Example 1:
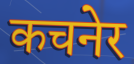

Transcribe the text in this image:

कचनेर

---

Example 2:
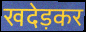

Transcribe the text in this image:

खदेड़कर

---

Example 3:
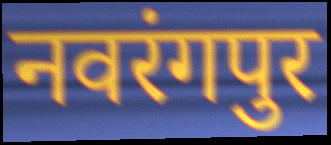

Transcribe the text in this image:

नवरंगपुर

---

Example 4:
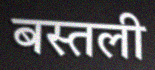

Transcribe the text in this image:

बस्तली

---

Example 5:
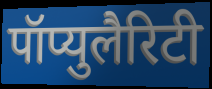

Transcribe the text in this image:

पॉप्युलैरिटी